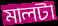
মালটা